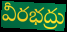
వీరభద్రు